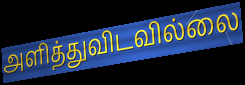
அளித்துவிடவில்லை